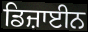
ਡਿਜ਼ਾਈਨ